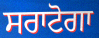
ਸਰਾਟੋਗਾ